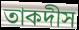
তাকদীস